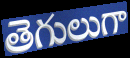
తెగులుగా